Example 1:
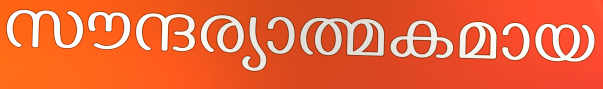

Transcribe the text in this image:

സൗന്ദര്യാത്മകമായ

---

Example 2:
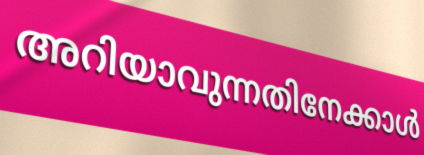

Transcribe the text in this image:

അറിയാവുന്നതിനേക്കാൾ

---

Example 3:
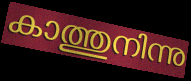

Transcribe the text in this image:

കാത്തുനിന്നു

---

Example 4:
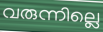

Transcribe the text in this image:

വരുന്നില്ലെ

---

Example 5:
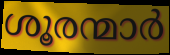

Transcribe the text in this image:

ശൂരന്മാർ